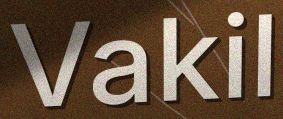
Vakil